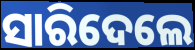
ସାରିଦେଲେ